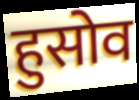
हुसोव